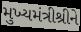
મુખ્યમંત્રીશ્રીને